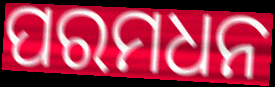
ପରମଧନ